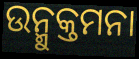
ଉନ୍ମୁକ୍ତମନା